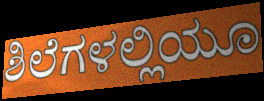
ಶಿಲೆಗಳಲ್ಲಿಯೂ